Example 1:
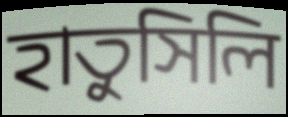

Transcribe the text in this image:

হাতুসিলি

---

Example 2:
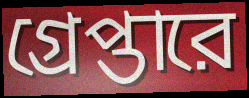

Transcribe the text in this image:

গ্রেপ্তারে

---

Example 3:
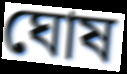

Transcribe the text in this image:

ঘোষ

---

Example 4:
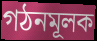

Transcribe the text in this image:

গঠনমূলক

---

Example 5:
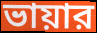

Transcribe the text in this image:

ভায়ার